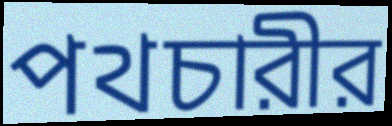
পথচারীর